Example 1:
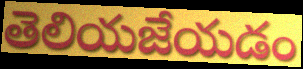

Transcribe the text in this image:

తెలియజేయడం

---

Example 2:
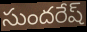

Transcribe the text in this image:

సుందరేష్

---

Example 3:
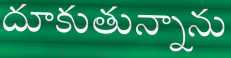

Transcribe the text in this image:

దూకుతున్నాను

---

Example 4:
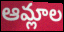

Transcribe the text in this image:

ఆమ్లాల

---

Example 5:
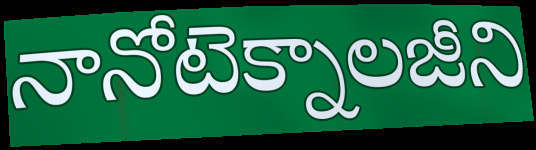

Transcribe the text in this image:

నానోటెక్నాలజీని